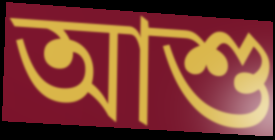
আশু